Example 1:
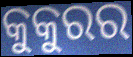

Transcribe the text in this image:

କୁକୁରର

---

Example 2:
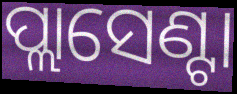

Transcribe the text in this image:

ପ୍ଲାସେଣ୍ଟା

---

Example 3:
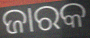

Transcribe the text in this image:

ଜାରକ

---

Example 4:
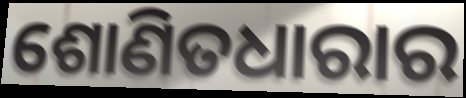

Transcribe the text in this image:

ଶୋଣିତଧାରାର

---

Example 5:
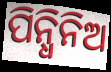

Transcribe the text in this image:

ପିନ୍ଧିନିଅ